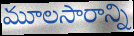
మూలసారాన్ని